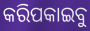
କରିପକାଇବୁ